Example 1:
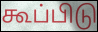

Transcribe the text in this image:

கூப்பிடு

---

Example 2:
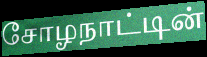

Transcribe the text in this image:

சோழநாட்டின்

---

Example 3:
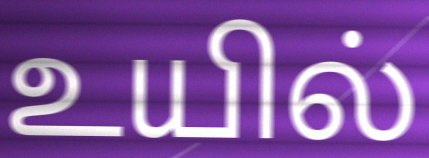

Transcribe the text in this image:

உயில்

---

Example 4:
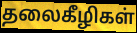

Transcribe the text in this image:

தலைகீழிகள்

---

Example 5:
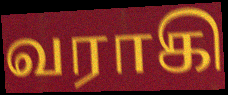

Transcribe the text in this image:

வராகி